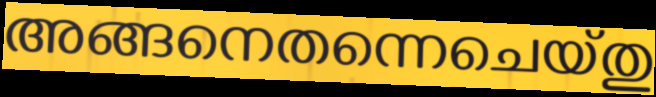
അങ്ങനെതന്നെചെയ്തു